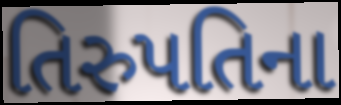
તિરુપતિના